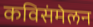
कविसंमेलन